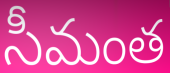
సీమంత